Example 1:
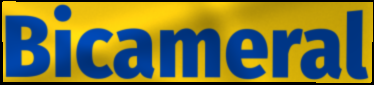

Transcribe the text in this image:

Bicameral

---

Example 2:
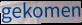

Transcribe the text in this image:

gekomen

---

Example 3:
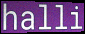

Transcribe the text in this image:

halli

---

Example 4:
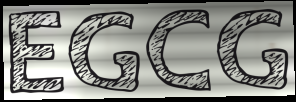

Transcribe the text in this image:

EGCG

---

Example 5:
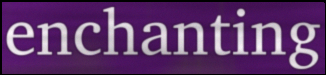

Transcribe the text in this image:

enchanting